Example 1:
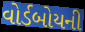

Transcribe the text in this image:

વોર્ડબોયની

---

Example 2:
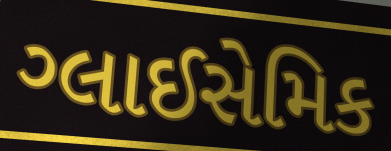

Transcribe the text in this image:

ગ્લાઈસેમિક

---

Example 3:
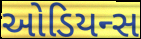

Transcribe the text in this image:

ઓડિયન્સ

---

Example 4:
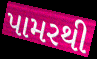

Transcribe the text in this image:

પામરથી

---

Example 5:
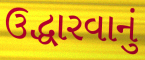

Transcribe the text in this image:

ઉદ્ધારવાનું